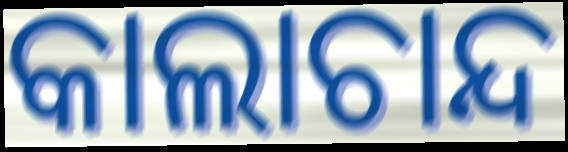
କାଲାଚାନ୍ଦ